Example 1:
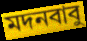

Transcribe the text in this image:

মদনবাবু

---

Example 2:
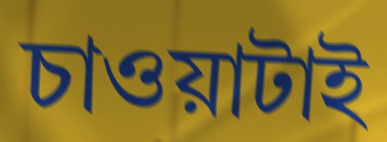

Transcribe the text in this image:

চাওয়াটাই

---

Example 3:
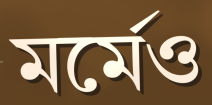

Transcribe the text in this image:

মর্মেও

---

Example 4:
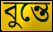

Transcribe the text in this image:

বুন্তে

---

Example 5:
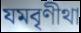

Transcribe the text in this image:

যমবৃণীথা